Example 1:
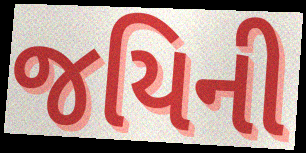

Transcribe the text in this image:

જયિની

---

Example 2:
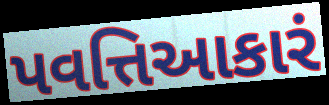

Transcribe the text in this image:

પવત્તિઆકારં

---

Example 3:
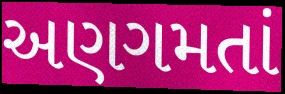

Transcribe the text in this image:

અણગમતાં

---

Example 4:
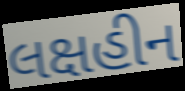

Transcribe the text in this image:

લક્ષહીન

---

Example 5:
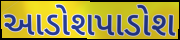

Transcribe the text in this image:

આડોશપાડોશ